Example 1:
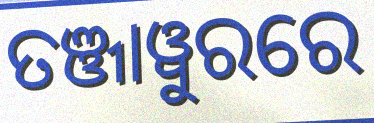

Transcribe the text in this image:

ତଞ୍ଜାୱୁରରେ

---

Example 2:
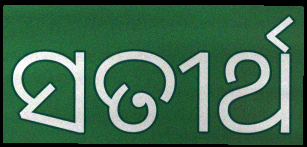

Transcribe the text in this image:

ସତୀର୍ଥ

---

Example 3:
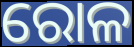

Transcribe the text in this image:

ରୋଳ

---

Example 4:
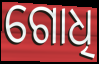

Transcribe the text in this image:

ଗୋଧି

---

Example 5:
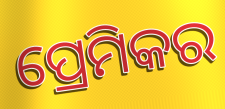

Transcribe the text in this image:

ପ୍ରେମିକର